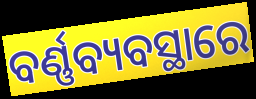
ବର୍ଣ୍ଣବ୍ୟବସ୍ଥାରେ